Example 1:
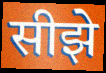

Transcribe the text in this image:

सीझे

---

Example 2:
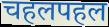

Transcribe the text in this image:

चहलपहल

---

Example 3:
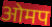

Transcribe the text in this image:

ओमप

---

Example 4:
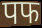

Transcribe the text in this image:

पफ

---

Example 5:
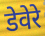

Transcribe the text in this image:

डेवेरे